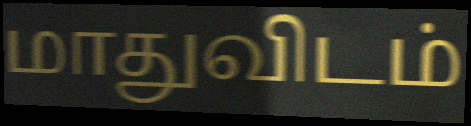
மாதுவிடம்